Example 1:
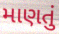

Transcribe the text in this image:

માણતું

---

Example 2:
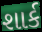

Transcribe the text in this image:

શાર્ક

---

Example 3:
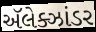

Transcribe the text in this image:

ઍલેક્ઝાંડર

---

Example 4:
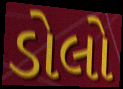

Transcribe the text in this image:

ડોલો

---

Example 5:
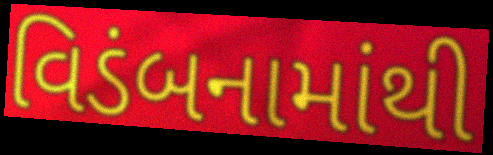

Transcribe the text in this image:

વિડંબનામાંથી